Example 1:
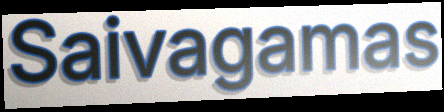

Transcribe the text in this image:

Saivagamas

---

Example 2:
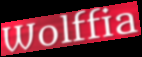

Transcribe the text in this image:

Wolffia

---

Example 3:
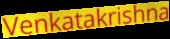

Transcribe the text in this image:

Venkatakrishna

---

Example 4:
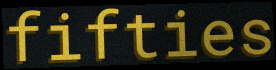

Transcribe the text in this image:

fifties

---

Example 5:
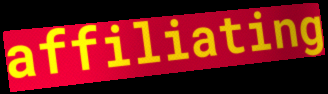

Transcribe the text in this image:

affiliating